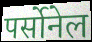
पर्सोनेल